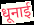
धूनाई